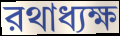
রথাধ্যক্ষ